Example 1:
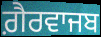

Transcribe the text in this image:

ਗ਼ੈਰਵਾਜਬ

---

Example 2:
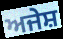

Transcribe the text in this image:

ਅਜੇਸ਼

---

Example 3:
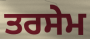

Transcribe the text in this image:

ਤਰਸੇਮ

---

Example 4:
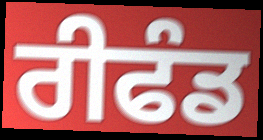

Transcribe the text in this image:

ਰੀਫੰਡ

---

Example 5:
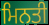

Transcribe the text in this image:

ਮਿਨਤੀ